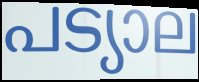
പട്യാല